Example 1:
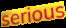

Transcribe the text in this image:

serious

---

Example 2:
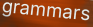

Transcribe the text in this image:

grammars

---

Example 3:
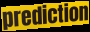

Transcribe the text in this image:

prediction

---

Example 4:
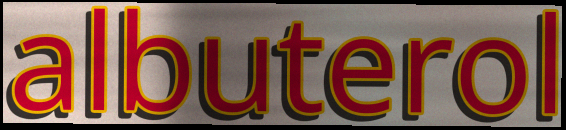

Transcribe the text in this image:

albuterol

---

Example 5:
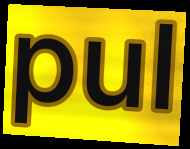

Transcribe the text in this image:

pul